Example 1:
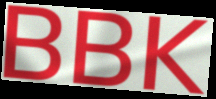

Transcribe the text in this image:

BBK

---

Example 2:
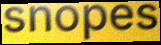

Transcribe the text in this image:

snopes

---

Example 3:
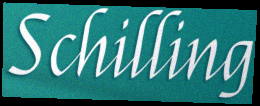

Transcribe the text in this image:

Schilling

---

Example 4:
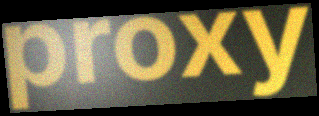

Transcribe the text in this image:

proxy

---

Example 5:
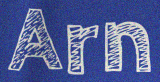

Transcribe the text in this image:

Arn